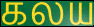
கலய